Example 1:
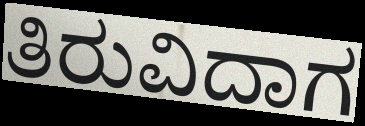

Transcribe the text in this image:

ತಿರುವಿದಾಗ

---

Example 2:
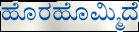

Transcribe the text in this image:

ಹೊರಹೊಮ್ಮಿದೆ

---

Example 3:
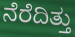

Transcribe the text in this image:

ನೆರೆದಿತ್ತು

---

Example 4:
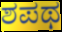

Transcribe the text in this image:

ಶಪಥ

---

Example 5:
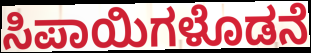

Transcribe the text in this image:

ಸಿಪಾಯಿಗಳೊಡನೆ